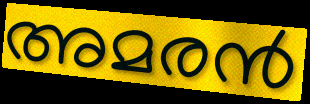
അമരൻ